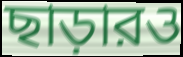
ছাড়ারও